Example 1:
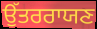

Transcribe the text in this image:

ਉੱਤਰਰਾਯਣ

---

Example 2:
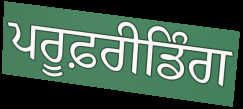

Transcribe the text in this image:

ਪਰੂਫ਼ਰੀਡਿੰਗ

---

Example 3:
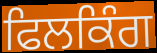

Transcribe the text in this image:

ਫਿਲਕਿੰਗ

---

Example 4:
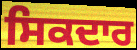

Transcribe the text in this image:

ਸਿਕਦਾਰ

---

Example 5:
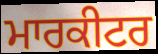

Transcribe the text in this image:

ਮਾਰਕੀਟਰ